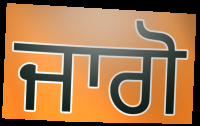
ਜਾਗੋ